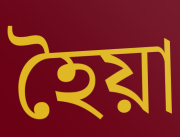
হৈয়া